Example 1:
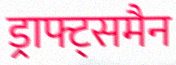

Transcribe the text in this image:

ड्राफ्ट्समैन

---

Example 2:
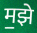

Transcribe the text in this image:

म॒झे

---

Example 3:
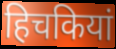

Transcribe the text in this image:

हिचकियां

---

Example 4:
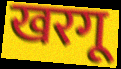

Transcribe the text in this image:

खरगू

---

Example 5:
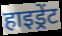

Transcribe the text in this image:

हाइड्रेंट